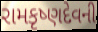
રામકૃષ્ણદેવની